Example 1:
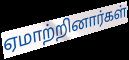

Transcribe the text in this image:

ஏமாற்றினார்கள்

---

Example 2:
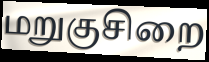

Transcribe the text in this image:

மறுகுசிறை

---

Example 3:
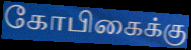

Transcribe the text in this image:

கோபிகைக்கு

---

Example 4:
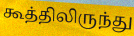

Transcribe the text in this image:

கூத்திலிருந்து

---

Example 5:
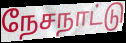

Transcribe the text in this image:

நேசநாட்டு